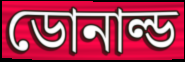
ডোনাল্ড